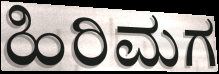
ಹಿರಿಮಗ